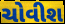
ચોવીશ